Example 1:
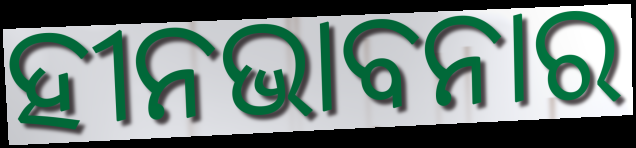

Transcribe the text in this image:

ହୀନଭାବନାର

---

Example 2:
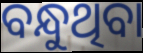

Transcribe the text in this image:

ବନ୍ଧୁଥିବା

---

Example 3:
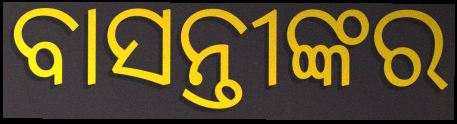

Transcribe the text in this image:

ବାସନ୍ତୀଙ୍କର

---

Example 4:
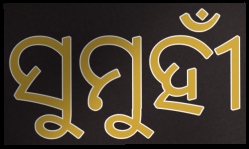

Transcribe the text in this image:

ସୁମୁହୀଁ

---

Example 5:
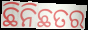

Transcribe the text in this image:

ଛିନିଛତର